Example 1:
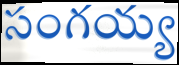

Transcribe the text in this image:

సంగయ్య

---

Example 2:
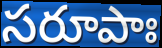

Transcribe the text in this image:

సరూపాః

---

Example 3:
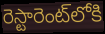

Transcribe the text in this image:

రెస్టారెంట్‌లోకి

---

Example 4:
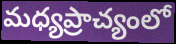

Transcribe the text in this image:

మధ్యప్రాచ్యంలో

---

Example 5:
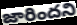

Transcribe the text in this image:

జారిందని